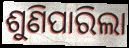
ଶୁଣିପାରିଲା